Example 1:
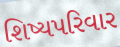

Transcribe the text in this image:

શિષ્યપરિવાર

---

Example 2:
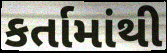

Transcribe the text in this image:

કર્તામાંથી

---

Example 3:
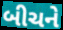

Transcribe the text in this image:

બીચને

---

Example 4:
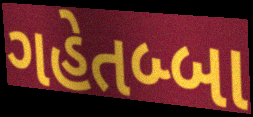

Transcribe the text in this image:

ગહેતબ્બા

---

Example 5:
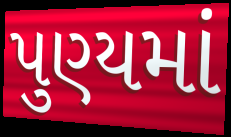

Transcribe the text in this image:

પુણ્યમાં